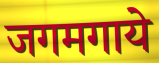
जगमगाये